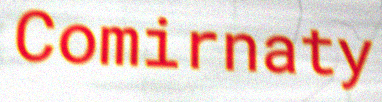
Comirnaty